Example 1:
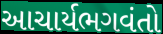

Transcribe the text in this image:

આચાર્યભગવંતો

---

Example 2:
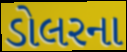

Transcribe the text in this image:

ડોલરના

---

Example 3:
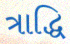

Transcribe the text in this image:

ત્રાદ્ધિ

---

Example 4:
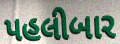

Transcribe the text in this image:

પહલીબાર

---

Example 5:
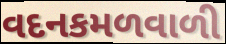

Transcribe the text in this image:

વદનકમળવાળી